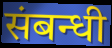
संबन्‍धी